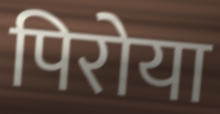
पिरोया